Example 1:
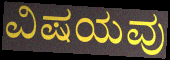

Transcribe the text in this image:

ವಿಷಯವು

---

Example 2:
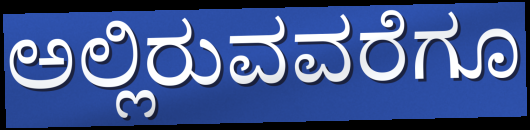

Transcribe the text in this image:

ಅಲ್ಲಿರುವವರೆಗೂ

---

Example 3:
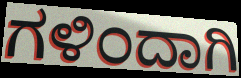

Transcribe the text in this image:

ಗಳಿಂದಾಗಿ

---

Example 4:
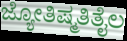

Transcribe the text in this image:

ಜ್ಯೋತಿಷ್ಮತಿತೈಲ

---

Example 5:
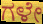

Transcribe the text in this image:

ಗಳೇ